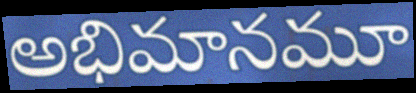
అభిమానమూ